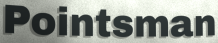
Pointsman